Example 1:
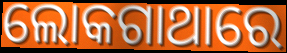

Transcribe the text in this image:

ଲୋକଗାଥାରେ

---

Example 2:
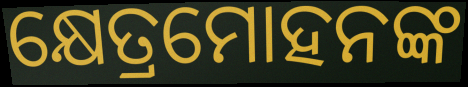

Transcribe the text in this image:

କ୍ଷେତ୍ରମୋହନଙ୍କ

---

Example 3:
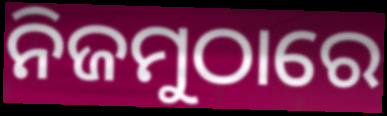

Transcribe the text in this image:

ନିଜମୁଠାରେ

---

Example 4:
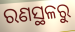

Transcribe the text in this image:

ରଣସ୍ଥଳରୁ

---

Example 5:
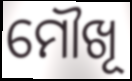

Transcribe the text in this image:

ମୌଖୂ